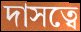
দাসত্বে